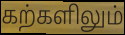
கற்களிலும்